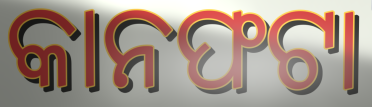
କାନଫଟା